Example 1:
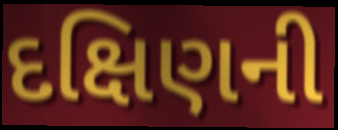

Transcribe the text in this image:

દક્ષિણની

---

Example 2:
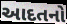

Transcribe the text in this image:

આદતનો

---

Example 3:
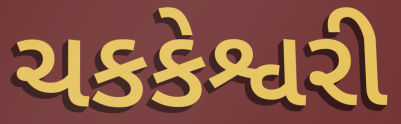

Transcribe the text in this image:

ચકકેશ્વરી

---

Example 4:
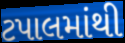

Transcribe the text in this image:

ટપાલમાંથી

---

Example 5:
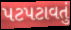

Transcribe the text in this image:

પટપટાવતું